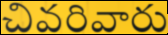
చివరివారు